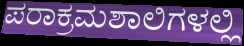
ಪರಾಕ್ರಮಶಾಲಿಗಳಲ್ಲಿ